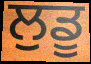
ਲੁਡੂ